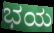
ಭಯ